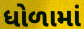
ધોળામાં